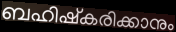
ബഹിഷ്കരിക്കാനും